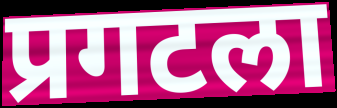
प्रगटला